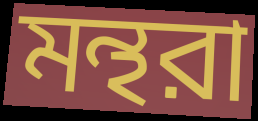
মন্থরা